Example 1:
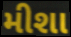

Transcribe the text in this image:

મીશા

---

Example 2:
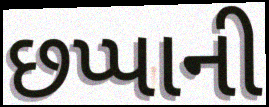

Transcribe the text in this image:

છપ્પાની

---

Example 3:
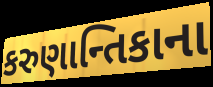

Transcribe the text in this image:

કરુણાન્તિકાના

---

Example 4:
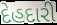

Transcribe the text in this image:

દેહદારી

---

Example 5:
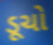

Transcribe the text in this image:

ડૂચો